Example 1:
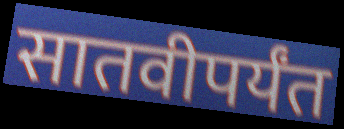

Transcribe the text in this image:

सातवीपर्यंत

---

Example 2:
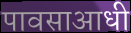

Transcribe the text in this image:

पावसाआधी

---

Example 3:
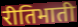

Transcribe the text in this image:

रीतिभाती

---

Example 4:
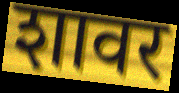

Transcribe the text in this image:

शावर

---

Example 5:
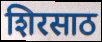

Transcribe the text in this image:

शिरसाठ